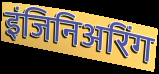
इंजिनिअरिंग